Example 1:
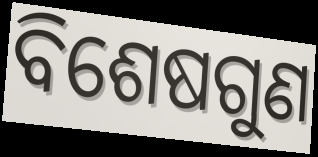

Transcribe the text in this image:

ବିଶେଷଗୁଣ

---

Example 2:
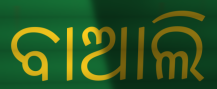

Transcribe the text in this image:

ବାଆଲି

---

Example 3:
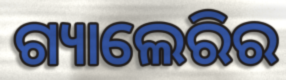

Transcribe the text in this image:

ଗ୍ୟାଲେରିର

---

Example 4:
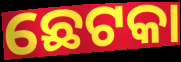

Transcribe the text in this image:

ଛେଟକା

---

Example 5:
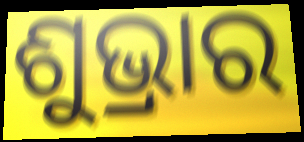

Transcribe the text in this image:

ଶୁଭ୍ରାର